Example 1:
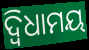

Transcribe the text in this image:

ଦ୍ୱିଧାମୟ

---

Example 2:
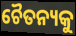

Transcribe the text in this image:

ଚୈତନ୍ୟକୁ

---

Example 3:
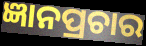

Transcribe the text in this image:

ଜ୍ଞାନପ୍ରଚାର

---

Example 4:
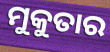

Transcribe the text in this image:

ମୁକୁତାର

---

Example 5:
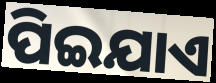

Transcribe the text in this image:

ପିଇଯାଏ